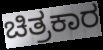
ಚಿತ್ರಕಾರ